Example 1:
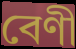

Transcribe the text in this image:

বেণী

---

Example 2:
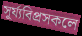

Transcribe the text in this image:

সূৰ্য্যবিপ্ৰসকলে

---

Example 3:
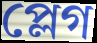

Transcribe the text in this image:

প্লেগ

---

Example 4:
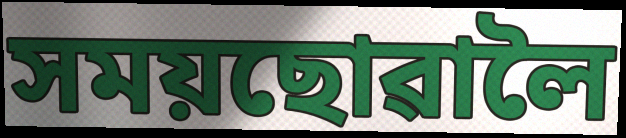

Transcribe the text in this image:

সময়ছোৱালৈ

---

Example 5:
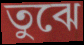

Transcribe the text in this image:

তুঝে